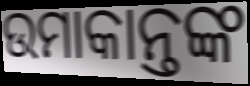
ଉମାକାନ୍ତଙ୍କ